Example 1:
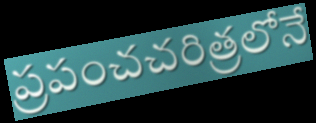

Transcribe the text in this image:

ప్రపంచచరిత్రలోనే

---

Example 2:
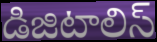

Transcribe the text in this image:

డిజిటాలిస్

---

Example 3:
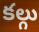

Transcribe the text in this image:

కల్గు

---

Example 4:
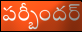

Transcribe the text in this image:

పర్బీందర్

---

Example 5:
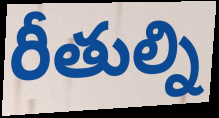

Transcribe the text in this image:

రీతుల్ని